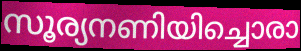
സൂര്യനണിയിച്ചൊരാ